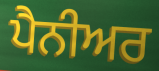
ਪੈਨੀਅਰ